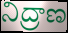
నిద్రాణ